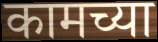
कामच्या